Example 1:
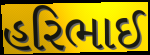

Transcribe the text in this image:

હરિભાઈ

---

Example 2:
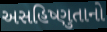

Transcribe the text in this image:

અસહિષ્ણુતાનો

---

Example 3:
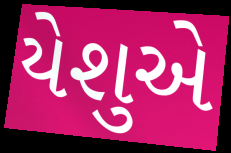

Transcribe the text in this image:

યેશુએ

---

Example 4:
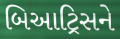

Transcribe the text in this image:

બિઆટ્રિસને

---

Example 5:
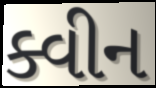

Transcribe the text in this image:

ક્વીન